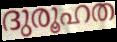
ദുരൂഹത